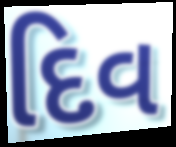
દિવ